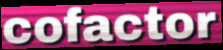
cofactor